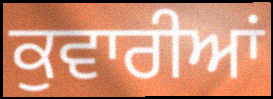
ਕੁਵਾਰੀਆਂ